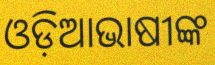
ଓଡ଼ିଆଭାଷୀଙ୍କ